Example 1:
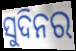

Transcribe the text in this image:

ସୁଦିନର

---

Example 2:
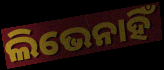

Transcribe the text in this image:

ଲିଭେନାହିଁ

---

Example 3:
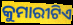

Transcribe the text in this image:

କୁମାରୀଟିଏ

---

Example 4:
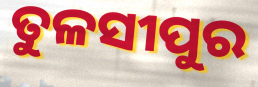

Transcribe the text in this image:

ତୁଳସୀପୁର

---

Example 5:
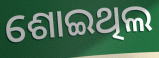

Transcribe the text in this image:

ଶୋଇଥିଲ